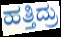
ಹತ್ತಿದ್ರು